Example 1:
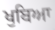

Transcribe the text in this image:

ਖੁਬਿਆ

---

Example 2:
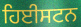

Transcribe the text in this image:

ਹਿਈਸਟਨ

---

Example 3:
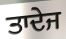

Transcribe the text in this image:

ਤਾਦੇਜ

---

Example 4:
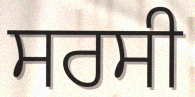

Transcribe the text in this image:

ਸਰਸੀ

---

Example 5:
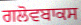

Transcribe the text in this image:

ਗਲੋਵਬਾਕਸ